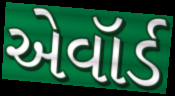
એવૉર્ડ